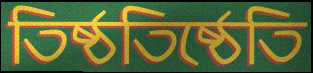
তিষ্ঠতিষ্ঠেতি